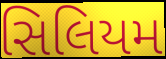
સિલિયમ